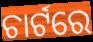
ଚାର୍ଟରେ